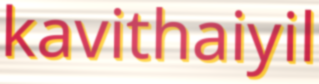
kavithaiyil